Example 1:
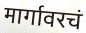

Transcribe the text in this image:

मार्गावरचं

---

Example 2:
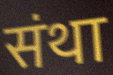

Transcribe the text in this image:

संथा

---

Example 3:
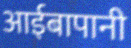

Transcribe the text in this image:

आईबापानी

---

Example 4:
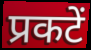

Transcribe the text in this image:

प्रकटें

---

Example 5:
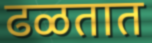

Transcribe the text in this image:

ढळतात